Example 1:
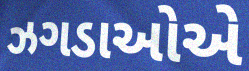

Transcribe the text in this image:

ઝગડાઓએ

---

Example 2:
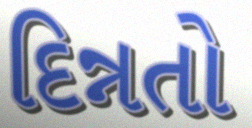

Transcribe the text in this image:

દિન્નતો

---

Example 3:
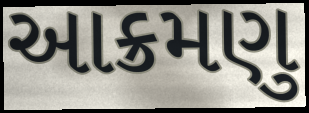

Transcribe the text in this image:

આક્રમણુ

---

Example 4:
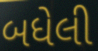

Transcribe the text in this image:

બધેલી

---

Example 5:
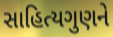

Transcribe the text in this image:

સાહિત્યગુણને